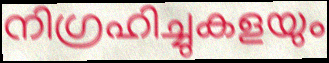
നിഗ്രഹിച്ചുകളയും